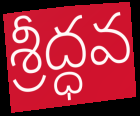
శ్రీద్ధవ